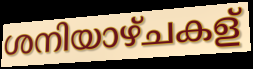
ശനിയാഴ്ചകള്